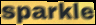
sparkle